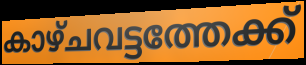
കാഴ്ചവട്ടത്തേക്ക്